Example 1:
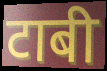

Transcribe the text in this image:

टाबी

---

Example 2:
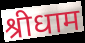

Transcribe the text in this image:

श्रीधाम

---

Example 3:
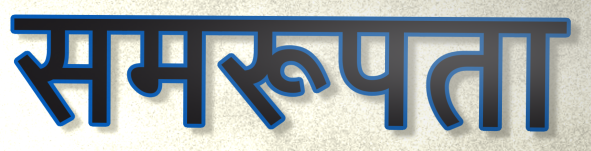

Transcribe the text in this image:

समरूपता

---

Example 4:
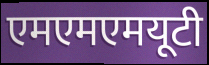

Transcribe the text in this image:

एमएमएमयूटी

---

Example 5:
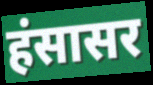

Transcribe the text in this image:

हंसासर